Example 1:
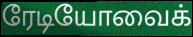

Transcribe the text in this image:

ரேடியோவைக்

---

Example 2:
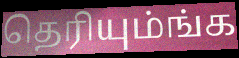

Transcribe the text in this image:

தெரியும்ங்க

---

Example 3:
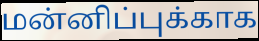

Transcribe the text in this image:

மன்னிப்புக்காக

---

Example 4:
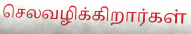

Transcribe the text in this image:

செலவழிக்கிறார்கள்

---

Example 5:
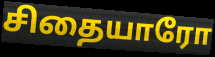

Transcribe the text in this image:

சிதையாரோ